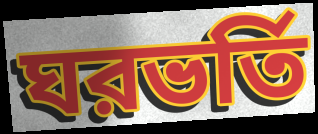
ঘরভর্তি